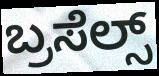
ಬ್ರಸೆಲ್ಸ್